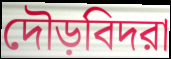
দৌড়বিদরা